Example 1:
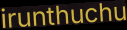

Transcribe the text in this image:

irunthuchu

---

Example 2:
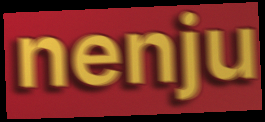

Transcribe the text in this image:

nenju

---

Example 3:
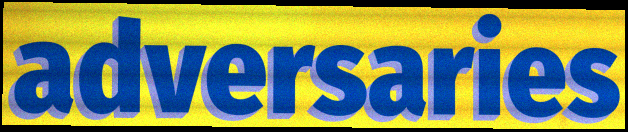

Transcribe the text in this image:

adversaries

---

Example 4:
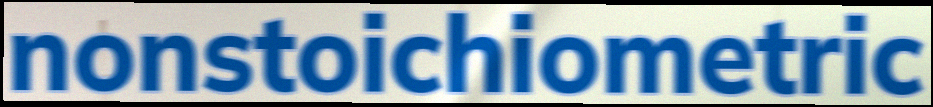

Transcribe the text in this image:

nonstoichiometric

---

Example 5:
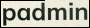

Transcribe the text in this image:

padmin